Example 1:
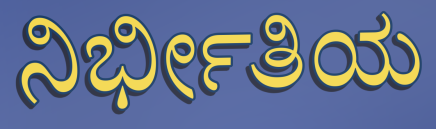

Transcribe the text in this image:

ನಿರ್ಭೀತಿಯ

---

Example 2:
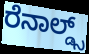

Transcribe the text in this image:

ರೆನಾಲ್ಡ್ಸ್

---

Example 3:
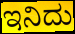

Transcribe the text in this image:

ಇನಿದು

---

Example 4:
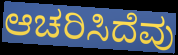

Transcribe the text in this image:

ಆಚರಿಸಿದೆವು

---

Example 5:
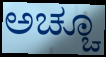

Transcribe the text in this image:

ಅಚ್ಚೂ